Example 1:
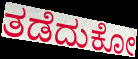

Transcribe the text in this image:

ತಡೆದುಕೋ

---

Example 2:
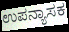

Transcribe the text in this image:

ಉಪನ್ಯಾಸಕ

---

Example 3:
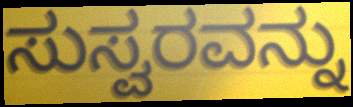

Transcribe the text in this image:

ಸುಸ್ವರವನ್ನು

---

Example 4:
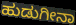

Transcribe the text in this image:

ಹುಡುಗೀನಾ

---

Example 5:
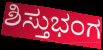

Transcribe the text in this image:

ಶಿಸ್ತುಭಂಗ